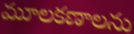
మూలకణాలను